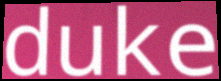
duke